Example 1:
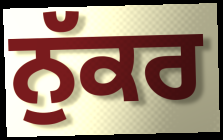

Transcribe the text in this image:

ਨੁੱਕਰ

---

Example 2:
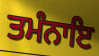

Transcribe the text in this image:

ਤਮੰਨਾਇ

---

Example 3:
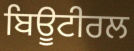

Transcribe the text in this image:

ਬਿਊਟੀਰਲ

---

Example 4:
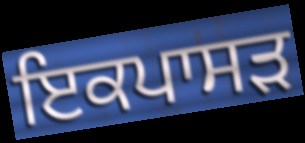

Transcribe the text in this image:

ਇਕਪਾਸੜ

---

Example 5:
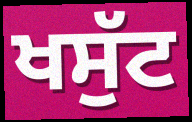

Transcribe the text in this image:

ਖਸੁੱਟ